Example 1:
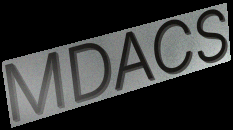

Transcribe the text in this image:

MDACS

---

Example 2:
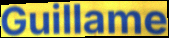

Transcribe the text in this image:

Guillame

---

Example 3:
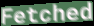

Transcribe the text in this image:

Fetched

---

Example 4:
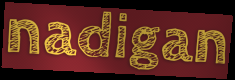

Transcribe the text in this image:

nadigan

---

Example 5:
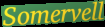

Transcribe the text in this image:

Somervell